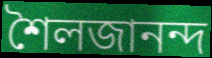
শৈলজানন্দ